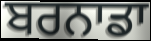
ਬਰਨਾਡਾ